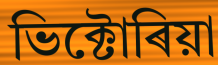
ভিক্টোৰিয়া